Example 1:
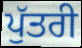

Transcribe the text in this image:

ਪੁੱਤਰੀ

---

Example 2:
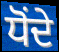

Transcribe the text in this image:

ਧੋਂਦੇ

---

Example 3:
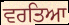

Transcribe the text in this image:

ਵਰਤਿਆ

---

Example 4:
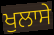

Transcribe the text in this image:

ਖੁਲਾਸੇ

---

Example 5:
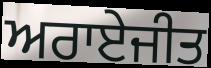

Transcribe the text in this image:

ਅਰਾਏਜੀਤ